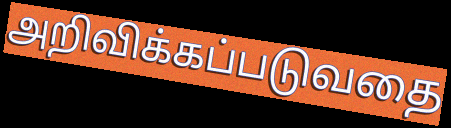
அறிவிக்கப்படுவதை